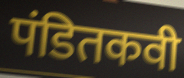
पंडितकवी